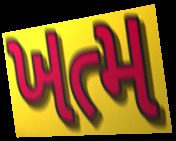
ખત્મ